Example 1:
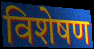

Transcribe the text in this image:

विशेषण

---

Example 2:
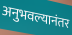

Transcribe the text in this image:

अनुभवल्यानंतर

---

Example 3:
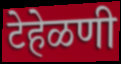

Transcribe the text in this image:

टेहेळणी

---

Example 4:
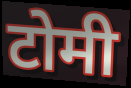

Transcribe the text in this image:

टोमी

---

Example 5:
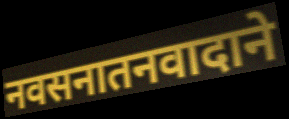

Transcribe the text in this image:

नवसनातनवादाने